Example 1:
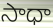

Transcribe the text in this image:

సాధా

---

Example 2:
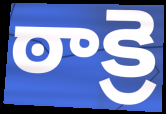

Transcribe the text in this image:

ఠాక్రె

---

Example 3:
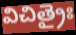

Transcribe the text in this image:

విచిత్రైః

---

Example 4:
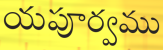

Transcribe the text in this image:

యపూర్వము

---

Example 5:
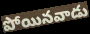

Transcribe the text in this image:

పోయినవాడు